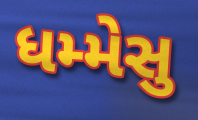
ધમ્મેસુ